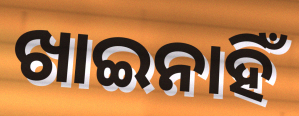
ଖାଇନାହିଁ